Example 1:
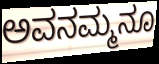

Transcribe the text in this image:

ಅವನಮ್ಮನೂ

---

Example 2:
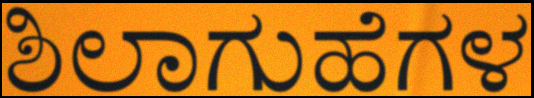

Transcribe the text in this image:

ಶಿಲಾಗುಹೆಗಳ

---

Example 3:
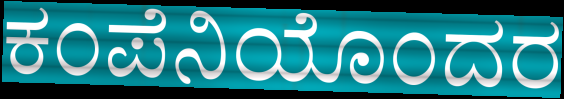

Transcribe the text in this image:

ಕಂಪೆನಿಯೊಂದರ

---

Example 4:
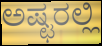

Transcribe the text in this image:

ಅಷ್ಟರಲ್ಲಿ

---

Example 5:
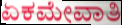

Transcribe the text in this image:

ಏಕಮೇವಾತಿ